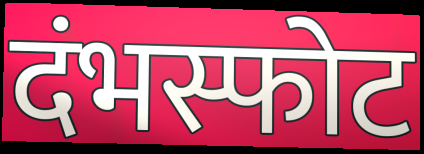
दंभस्फोट